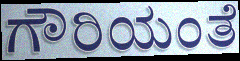
ಗೌರಿಯಂತೆ